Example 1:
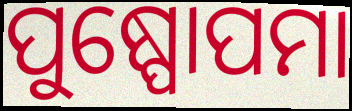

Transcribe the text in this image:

ପୁଷ୍ପୋପମା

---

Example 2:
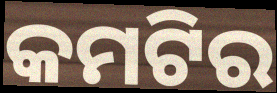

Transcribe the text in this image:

କମଟିର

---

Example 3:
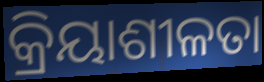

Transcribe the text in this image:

କ୍ରିୟାଶୀଳତା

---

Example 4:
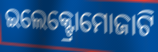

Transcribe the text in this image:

ଇଲେକ୍ଟ୍ରୋମୋଜାଟି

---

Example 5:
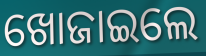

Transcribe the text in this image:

ଖୋଜାଇଲେ